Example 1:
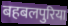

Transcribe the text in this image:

बहबलपुरिया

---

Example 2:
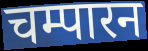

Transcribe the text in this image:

चम्पारन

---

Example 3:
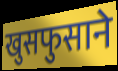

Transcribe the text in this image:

खुसफुसाने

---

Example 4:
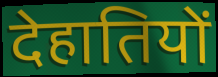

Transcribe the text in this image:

देहातियों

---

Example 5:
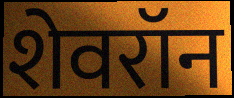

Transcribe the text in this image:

शेवरॉन